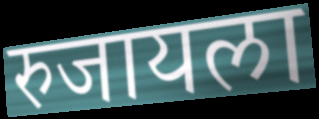
रुजायला